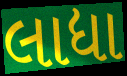
લાદ્યા